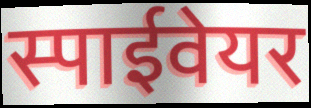
स्पाईवेयर